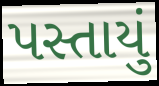
પસ્તાયું